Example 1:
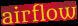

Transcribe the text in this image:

airflow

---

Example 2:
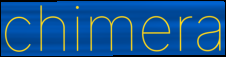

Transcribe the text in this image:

chimera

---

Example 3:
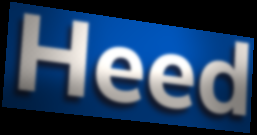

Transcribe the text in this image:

Heed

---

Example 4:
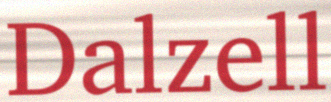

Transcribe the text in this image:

Dalzell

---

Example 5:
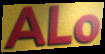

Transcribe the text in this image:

ALo